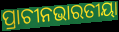
ପ୍ରାଚୀନଭାରତୀୟା